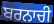
ਬਰਨਾਚੀ